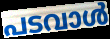
പടവാൾ